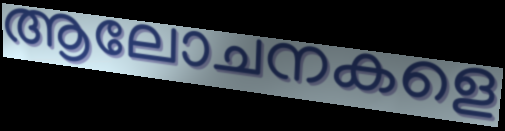
ആലോചനകളെ